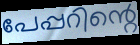
പേപ്പറിന്റെ